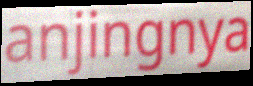
anjingnya